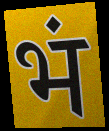
भं